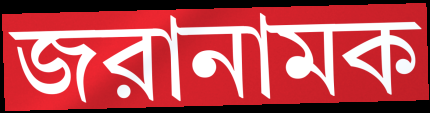
জরানামক